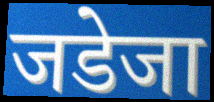
जडेजा